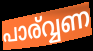
പാര്വ്വണ